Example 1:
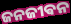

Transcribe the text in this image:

ଜନଜୀଵନ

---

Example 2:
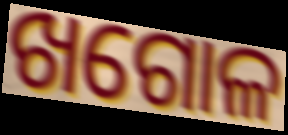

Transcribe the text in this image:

ଖଗୋଳ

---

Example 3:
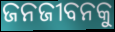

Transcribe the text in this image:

ଜନଜୀବନକୁ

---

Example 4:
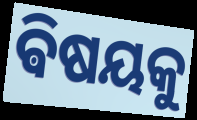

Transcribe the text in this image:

ଵିଷୟକୁ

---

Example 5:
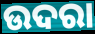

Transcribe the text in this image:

ଉଦରା